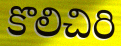
కొలిచిరి